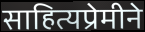
साहित्यप्रेमीने